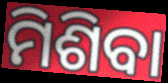
ମିଶିବା